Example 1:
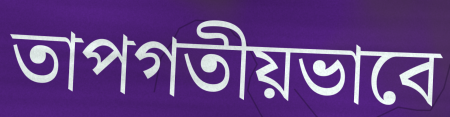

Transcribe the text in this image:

তাপগতীয়ভাবে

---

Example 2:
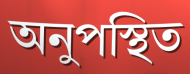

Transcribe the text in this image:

অনুপস্থিত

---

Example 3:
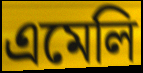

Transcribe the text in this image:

এমেলি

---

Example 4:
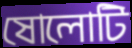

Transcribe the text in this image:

ষোলোটি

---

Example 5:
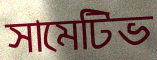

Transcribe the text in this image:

সামেটিভ